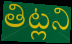
తిట్లని